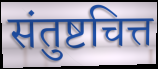
संतुष्टचित्त